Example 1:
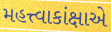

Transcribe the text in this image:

મહત્ત્વાકાંક્ષાએ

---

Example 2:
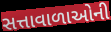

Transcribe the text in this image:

સત્તાવાળાઓની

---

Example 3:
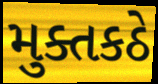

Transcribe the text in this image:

મુક્તકઠે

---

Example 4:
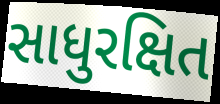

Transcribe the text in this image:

સાધુરક્ષિત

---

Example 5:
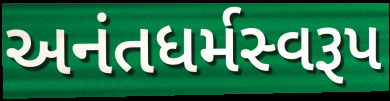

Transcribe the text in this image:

અનંતધર્મસ્વરૂપ